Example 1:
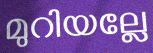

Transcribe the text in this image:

മുറിയല്ലേ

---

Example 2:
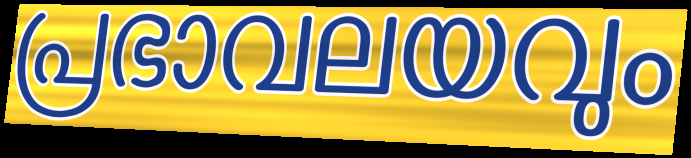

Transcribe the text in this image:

പ്രഭാവലയവും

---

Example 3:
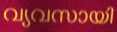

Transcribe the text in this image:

വ്യവസായി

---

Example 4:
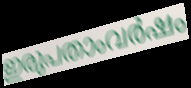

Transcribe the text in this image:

ഇരുപതാംവർഷം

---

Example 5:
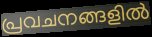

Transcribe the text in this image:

പ്രവചനങ്ങളിൽ